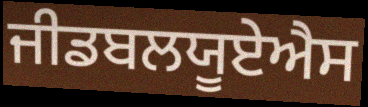
ਜੀਡਬਲਯੂਏਐਸ